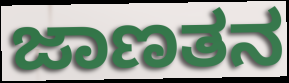
ಜಾಣತನ